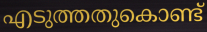
എടുത്തതുകൊണ്ട്